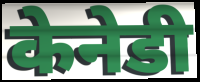
केनेडी